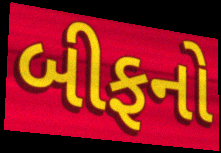
બીફનો